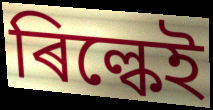
ৰিল্কেই